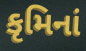
કૃમિનાં